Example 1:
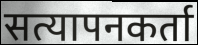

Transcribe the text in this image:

सत्यापनकर्ता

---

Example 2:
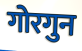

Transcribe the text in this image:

गोरगुन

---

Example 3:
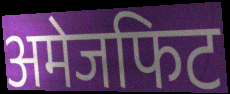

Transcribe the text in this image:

अमेजफिट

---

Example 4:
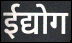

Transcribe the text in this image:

ईद्योग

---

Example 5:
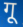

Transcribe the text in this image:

गू